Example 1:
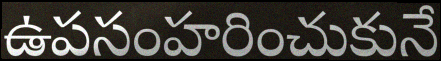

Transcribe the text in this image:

ఉపసంహరించుకునే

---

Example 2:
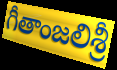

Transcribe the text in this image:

గీతాంజలిశ్రీ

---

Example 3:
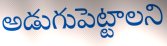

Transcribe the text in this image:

అడుగుపెట్టాలని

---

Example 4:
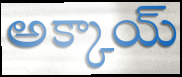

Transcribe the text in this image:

అక్కాయ్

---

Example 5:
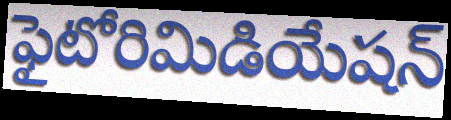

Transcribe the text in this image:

ఫైటోరిమిడియేషన్